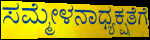
ಸಮ್ಮೇಳನಾಧ್ಯಕ್ಷತೆಗೆ